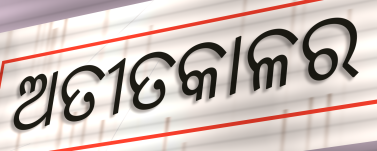
ଅତୀତକାଳର